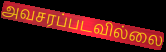
அவசரப்படவில்லை